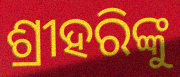
ଶ୍ରୀହରିଙ୍କୁ